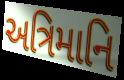
અત્રિમાનિ